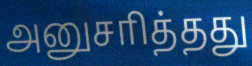
அனுசரித்தது